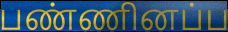
பண்ணினப்ப